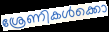
ശ്രേണികൾക്കൊ